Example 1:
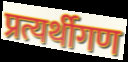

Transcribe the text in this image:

प्रत्यर्थीगण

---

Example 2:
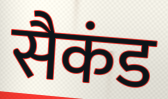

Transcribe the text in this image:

सैकंड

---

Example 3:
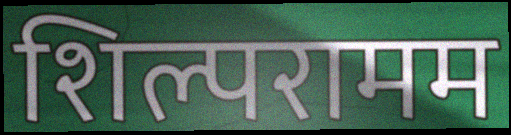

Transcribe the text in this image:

शिल्परामम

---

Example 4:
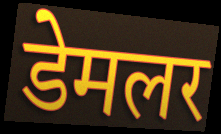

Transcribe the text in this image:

डेमलर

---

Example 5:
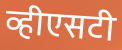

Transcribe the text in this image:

व्हीएसटी